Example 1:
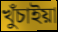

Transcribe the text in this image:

খুঁচাইয়া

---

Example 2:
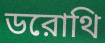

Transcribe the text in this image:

ডরোথি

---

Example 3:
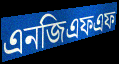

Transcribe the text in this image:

এনজিএফএফ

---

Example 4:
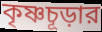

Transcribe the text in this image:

কৃষ্ণচূড়ার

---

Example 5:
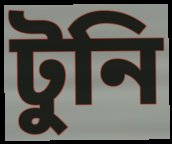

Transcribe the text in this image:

টুনি